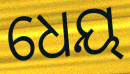
ଧେୟ